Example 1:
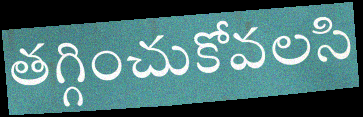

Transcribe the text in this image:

తగ్గించుకోవలసి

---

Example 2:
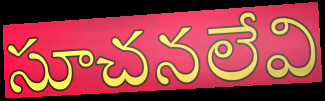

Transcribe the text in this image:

సూచనలేవి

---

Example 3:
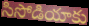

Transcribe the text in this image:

సిసోడియాకు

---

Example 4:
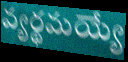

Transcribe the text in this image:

వ్యర్థమయ్యే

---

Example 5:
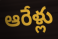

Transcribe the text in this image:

ఆరేళ్లు